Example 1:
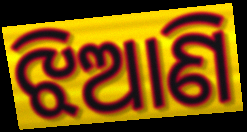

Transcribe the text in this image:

ଝିଆଣି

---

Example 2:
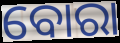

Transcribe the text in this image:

ବୋରା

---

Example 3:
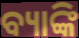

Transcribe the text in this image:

ବ୍ୟାଙ୍କି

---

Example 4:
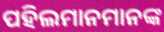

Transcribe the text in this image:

ପହିଲମାନମାନଙ୍କ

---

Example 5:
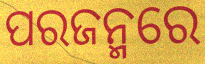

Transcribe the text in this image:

ପରଜନ୍ମରେ